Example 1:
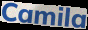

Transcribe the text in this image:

Camila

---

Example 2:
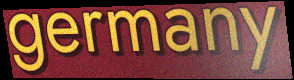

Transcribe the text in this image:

germany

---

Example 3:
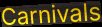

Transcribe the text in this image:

Carnivals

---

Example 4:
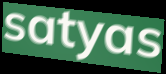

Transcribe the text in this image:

satyas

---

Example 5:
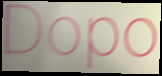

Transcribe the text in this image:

Dopo